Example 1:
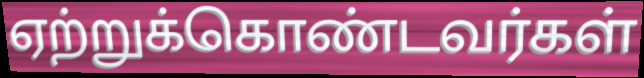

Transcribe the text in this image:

ஏற்றுக்கொண்டவர்கள்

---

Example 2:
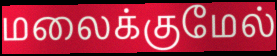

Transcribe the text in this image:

மலைக்குமேல்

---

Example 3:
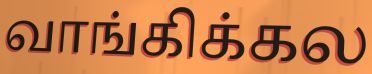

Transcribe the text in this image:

வாங்கிக்கல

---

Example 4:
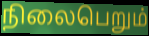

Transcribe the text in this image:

நிலைபெறும்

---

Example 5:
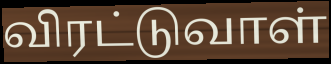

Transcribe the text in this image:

விரட்டுவாள்